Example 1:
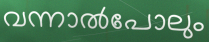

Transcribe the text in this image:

വന്നാൽപോലും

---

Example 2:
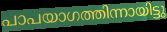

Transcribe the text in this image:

പാപയാഗത്തിന്നായിട്ടു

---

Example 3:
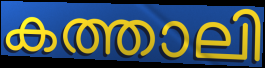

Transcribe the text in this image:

കത്താലി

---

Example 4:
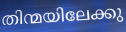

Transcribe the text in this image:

തിന്മയിലേക്കു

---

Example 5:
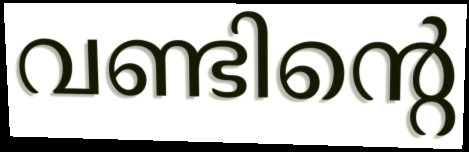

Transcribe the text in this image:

വണ്ടിന്റെ